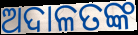
ଅଦାଳତଙ୍କ